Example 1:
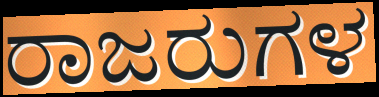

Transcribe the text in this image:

ರಾಜರುಗಳ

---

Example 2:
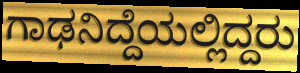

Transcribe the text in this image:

ಗಾಢನಿದ್ದೆಯಲ್ಲಿದ್ದರು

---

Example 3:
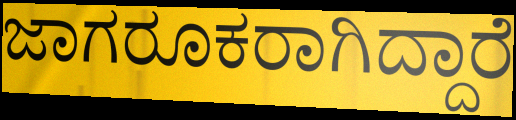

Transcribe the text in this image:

ಜಾಗರೂಕರಾಗಿದ್ದಾರೆ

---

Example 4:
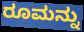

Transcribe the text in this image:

ರೂಮನ್ನು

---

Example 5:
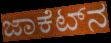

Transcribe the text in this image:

ಜಾಕೆಟ್‌ನ